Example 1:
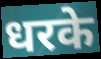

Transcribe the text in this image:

धरके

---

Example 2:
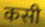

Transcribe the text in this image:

कसी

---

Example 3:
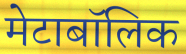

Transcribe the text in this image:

मेटाबॉलिक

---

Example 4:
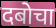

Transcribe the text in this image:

दबोचा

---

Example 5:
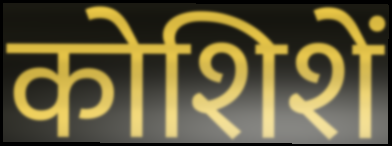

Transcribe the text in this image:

कोशिशें